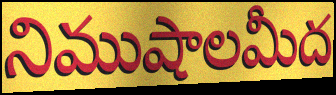
నిముషాలమీద